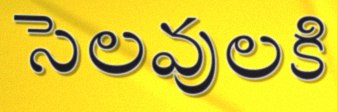
సెలవులకి